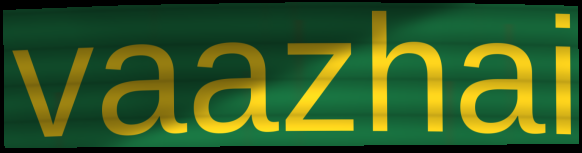
vaazhai